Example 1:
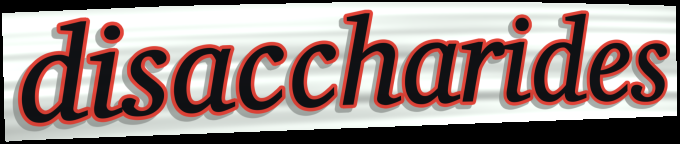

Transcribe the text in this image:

disaccharides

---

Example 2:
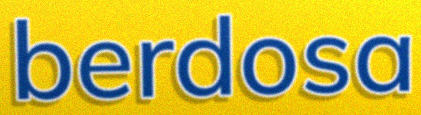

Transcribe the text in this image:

berdosa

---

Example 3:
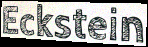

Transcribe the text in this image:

Eckstein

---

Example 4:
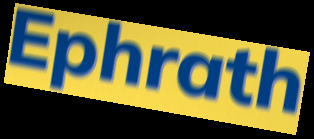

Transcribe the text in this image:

Ephrath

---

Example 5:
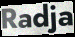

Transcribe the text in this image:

Radja